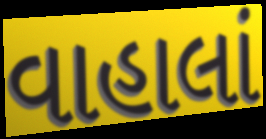
વાહાલાં